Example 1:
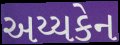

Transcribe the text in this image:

અય્યકેન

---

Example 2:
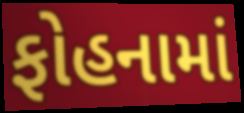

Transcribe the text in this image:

ફોહનામાં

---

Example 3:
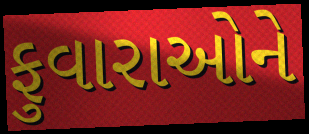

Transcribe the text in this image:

ફુવારાઓને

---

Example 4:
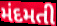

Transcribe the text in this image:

મંદમતી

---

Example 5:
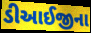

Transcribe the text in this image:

ડીઆઈજીના